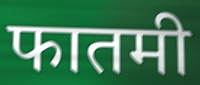
फातमी